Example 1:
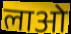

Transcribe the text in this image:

लाओ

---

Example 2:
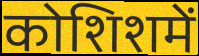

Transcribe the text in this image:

कोशिशमें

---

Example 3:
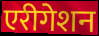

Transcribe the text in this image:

एरीगेशन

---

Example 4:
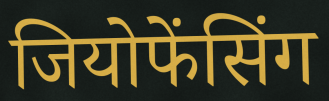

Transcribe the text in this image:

जियोफेंसिंग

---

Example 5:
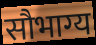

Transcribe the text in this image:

सौभाग्य